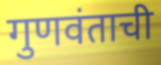
गुणवंताची